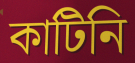
কাটিনি